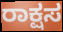
ರಾಕ್ಷಸ